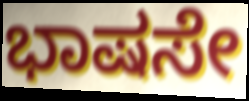
ಭಾಷಸೇ